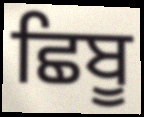
ਛਿਬੂ